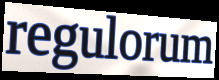
regulorum